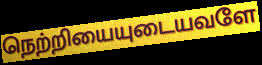
நெற்றியையுடையவளே